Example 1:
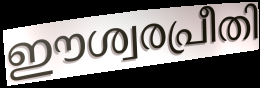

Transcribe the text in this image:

ഈശ്വരപ്രീതി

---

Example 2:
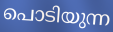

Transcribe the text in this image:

പൊടിയുന്ന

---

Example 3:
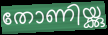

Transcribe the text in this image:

തോണിയ്ക്കു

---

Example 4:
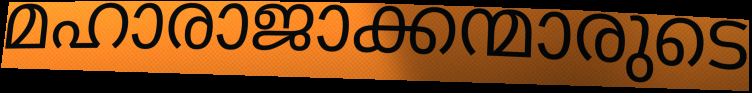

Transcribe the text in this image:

മഹാരാജാക്കന്മാരുടെ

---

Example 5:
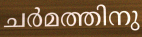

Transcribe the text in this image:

ചർമത്തിനു